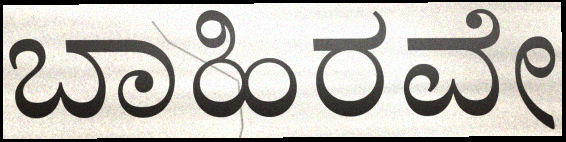
ಬಾಹಿರವೇ